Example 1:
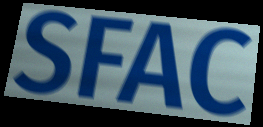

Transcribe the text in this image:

SFAC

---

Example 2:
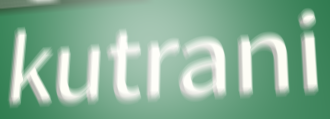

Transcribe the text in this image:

kutrani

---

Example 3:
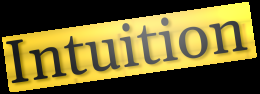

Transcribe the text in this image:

Intuition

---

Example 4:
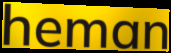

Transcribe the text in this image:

heman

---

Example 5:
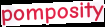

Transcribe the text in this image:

pomposity